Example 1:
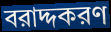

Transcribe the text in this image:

বরাদ্দকরণ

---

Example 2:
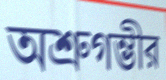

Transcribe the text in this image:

অশ্রুগম্ভীর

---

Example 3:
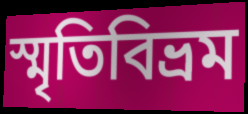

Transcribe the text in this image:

স্মৃতিবিভ্রম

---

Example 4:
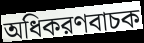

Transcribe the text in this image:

অধিকরণবাচক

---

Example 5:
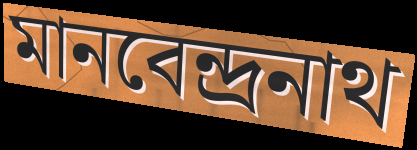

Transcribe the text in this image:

মানবেন্দ্রনাথ